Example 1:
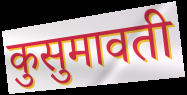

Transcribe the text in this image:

कुसुमावती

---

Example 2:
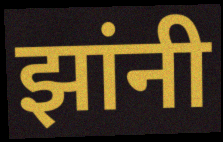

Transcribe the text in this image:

झांनी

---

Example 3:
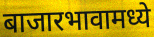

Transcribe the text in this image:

बाजारभावामध्ये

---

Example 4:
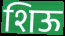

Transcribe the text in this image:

शिऊ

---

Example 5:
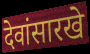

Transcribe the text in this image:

देवांसारखे